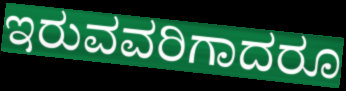
ಇರುವವರಿಗಾದರೂ